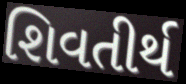
શિવતીર્થ